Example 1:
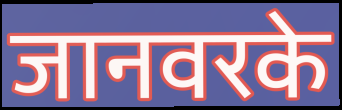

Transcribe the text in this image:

जानवरके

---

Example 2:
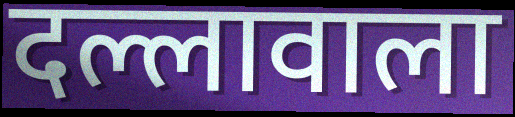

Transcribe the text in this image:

दल्लावाला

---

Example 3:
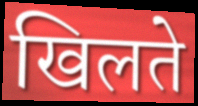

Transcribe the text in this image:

खिलते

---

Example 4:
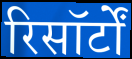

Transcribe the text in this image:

रिसॉर्टों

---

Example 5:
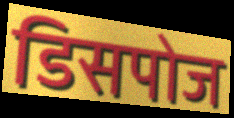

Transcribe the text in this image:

डिसपोज